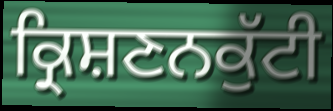
ਕ੍ਰਿਸ਼ਣਨਕੁੱਟੀ